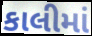
કાલીમાં